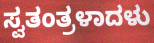
ಸ್ವತಂತ್ರಳಾದಳು